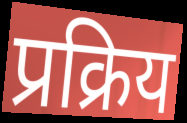
प्रक्रिय